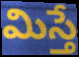
మిస్తే